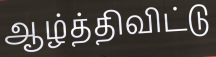
ஆழ்த்திவிட்டு